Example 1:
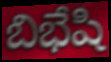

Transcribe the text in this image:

బిభేషి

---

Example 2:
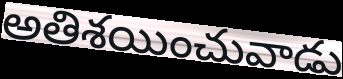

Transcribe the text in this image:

అతిశయించువాడు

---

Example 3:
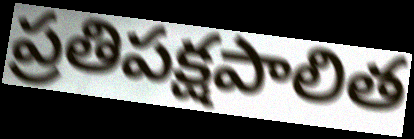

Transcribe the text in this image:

ప్రతిపక్షపాలిత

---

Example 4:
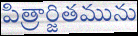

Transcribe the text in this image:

పిత్రార్జితమును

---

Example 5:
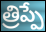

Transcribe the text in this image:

త్రిప్పే